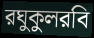
রঘুকুলরবি